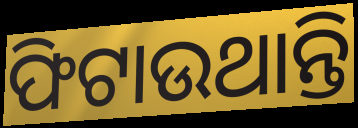
ଫିଟାଉଥାନ୍ତି